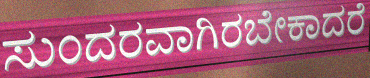
ಸುಂದರವಾಗಿರಬೇಕಾದರೆ